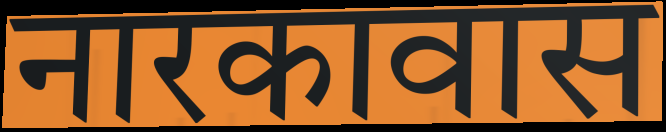
नारकावास